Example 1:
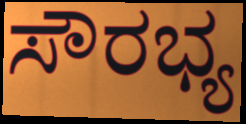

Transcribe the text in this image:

ಸೌರಭ್ಯ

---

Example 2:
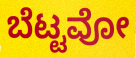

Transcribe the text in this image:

ಬೆಟ್ಟವೋ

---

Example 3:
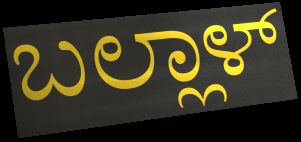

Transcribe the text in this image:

ಬಲ್ಲಾಳ್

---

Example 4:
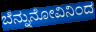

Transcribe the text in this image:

ಬೆನ್ನುನೋವಿನಿಂದ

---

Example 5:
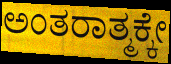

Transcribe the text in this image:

ಅಂತರಾತ್ಮಕ್ಕೇ